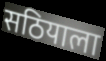
सठियाला